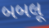
બબલૂ